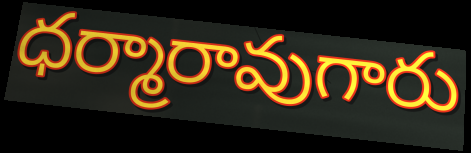
ధర్మారావుగారు